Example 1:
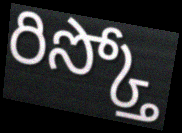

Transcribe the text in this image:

రిస్క్తో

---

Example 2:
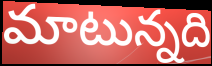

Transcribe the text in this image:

మాటున్నది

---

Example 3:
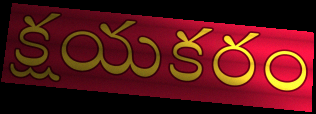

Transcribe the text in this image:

క్షయకరం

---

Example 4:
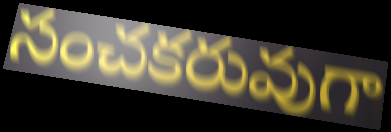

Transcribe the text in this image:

సంచకరువుగా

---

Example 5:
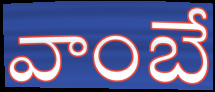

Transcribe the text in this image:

వాంబే